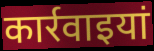
कार्रवाइयां